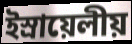
ইস্রায়েলীয়